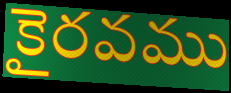
కైరవము